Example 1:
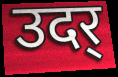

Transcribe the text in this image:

उदर्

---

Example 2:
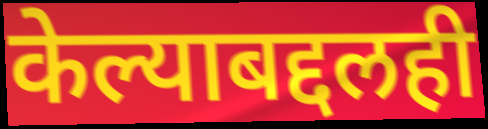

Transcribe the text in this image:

केल्याबद्दलही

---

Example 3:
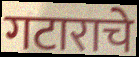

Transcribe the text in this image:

गटाराचे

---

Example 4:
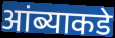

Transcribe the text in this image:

आंब्याकडे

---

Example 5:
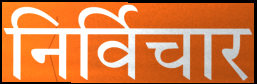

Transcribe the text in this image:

निर्विचार